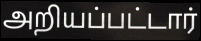
அறியப்பட்டார்